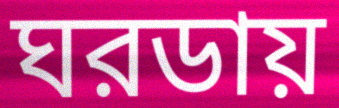
ঘরডায়